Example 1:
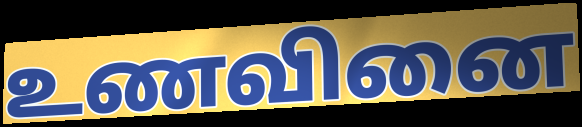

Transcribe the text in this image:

உணவினை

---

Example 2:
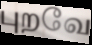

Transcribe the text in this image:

புறவே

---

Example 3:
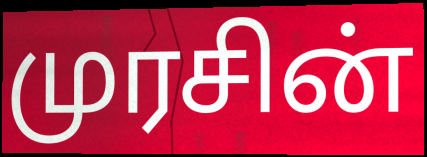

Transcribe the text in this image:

முரசின்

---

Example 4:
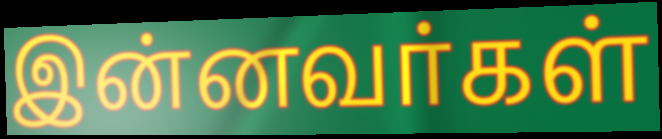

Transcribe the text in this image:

இன்னவர்கள்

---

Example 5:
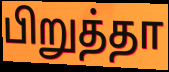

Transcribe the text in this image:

பிறுத்தா